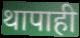
थापाही